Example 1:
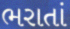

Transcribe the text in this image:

ભરાતાં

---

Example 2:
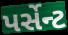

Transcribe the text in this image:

પર્સેન્ટ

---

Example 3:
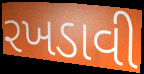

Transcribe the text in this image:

રખડાવી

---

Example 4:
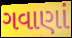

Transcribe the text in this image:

ગવાણાં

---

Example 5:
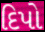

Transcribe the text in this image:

દિપો